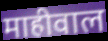
माहीवाल